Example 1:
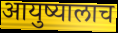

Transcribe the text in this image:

आयुष्यालाच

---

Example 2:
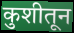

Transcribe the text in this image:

कुशीतून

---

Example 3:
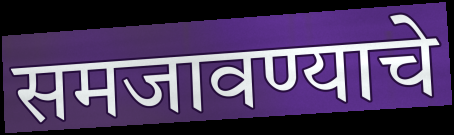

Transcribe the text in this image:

समजावण्याचे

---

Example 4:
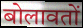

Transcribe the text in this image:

बोलावतों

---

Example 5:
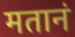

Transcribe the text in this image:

मतानं